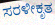
ಸರಳೀಕೃತ